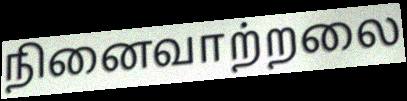
நினைவாற்றலை